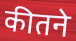
कीतने